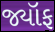
જ્યૉફ